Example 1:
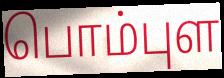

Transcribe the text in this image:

பொம்புள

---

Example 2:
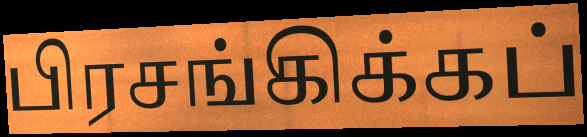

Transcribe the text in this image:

பிரசங்கிக்கப்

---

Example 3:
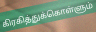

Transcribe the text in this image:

கிரகித்துக்கொள்ளும்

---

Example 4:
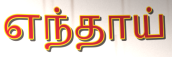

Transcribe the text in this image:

எந்தாய்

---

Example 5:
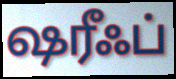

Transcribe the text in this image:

ஷரீஃப்